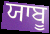
ਯਾਬੂ